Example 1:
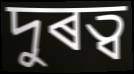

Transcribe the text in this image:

দুৰত্ব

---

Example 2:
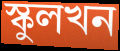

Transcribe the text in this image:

স্কুলখন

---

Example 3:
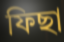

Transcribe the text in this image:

ফিছা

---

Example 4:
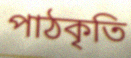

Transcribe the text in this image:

পাঠকৃতি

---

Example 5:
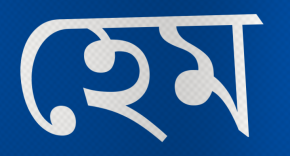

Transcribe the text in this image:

হেম